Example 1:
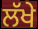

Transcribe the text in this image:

ਲੱਖੇ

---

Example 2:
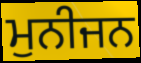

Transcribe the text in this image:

ਮੁਨੀਜਨ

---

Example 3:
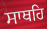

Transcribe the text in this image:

ਸਾਥਹਿ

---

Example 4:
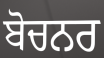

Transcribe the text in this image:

ਬੋਚਨਰ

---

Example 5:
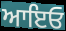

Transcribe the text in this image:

ਆਇਓ